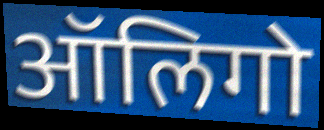
ऑलिगो